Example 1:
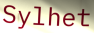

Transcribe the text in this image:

Sylhet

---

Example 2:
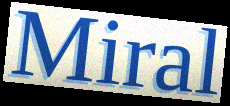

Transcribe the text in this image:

Miral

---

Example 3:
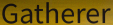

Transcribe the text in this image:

Gatherer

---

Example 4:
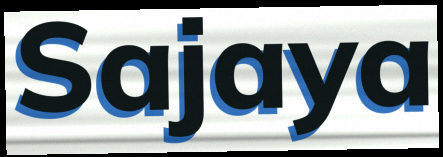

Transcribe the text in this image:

Sajaya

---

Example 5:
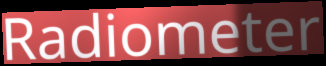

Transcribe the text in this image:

Radiometer